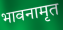
भावनामृत